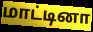
மாட்டினா